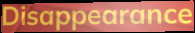
Disappearance